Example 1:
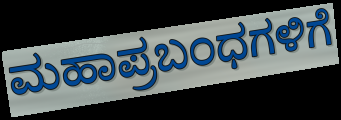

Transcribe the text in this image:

ಮಹಾಪ್ರಬಂಧಗಳಿಗೆ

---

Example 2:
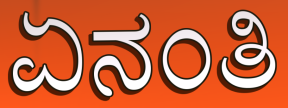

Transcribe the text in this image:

ಏನಂತಿ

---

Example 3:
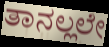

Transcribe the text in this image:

ತಾನಲ್ಲಲೇ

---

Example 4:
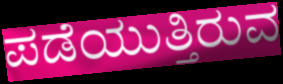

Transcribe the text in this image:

ಪಡೆಯುತ್ತಿರುವ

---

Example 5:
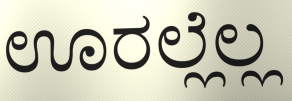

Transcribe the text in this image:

ಊರಲ್ಲೆಲ್ಲ